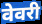
वेवरी